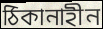
ঠিকানাহীন